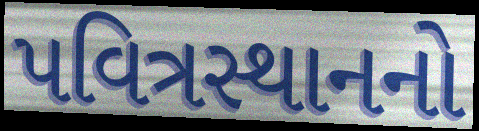
પવિત્રસ્થાનનો